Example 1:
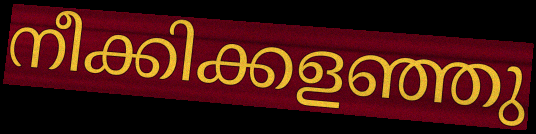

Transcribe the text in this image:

നീക്കിക്കളഞ്ഞു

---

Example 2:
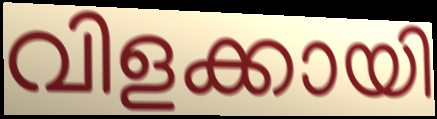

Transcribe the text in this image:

വിളക്കായി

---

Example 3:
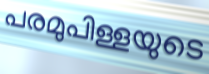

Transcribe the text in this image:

പരമുപിള്ളയുടെ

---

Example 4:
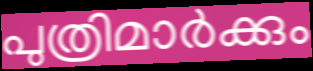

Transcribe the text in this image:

പുത്രിമാർക്കും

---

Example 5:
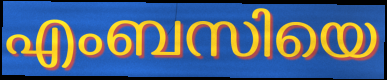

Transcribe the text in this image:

എംബസിയെ